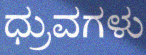
ಧ್ರುವಗಳು